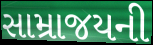
સામ્રાજયની